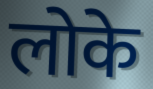
लोके